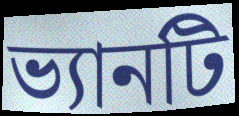
ভ্যানটি